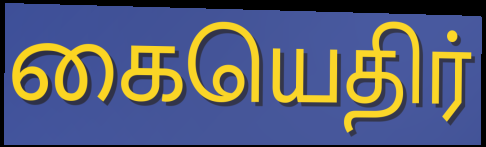
கையெதிர்